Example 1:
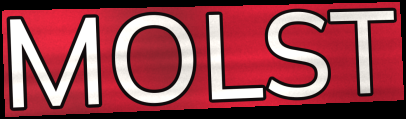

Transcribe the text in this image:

MOLST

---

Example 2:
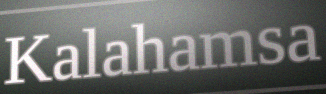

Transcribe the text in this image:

Kalahamsa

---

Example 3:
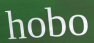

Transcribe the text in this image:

hobo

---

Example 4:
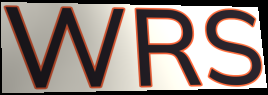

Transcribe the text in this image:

WRS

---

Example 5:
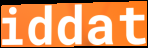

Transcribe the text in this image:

iddat